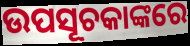
ଉପସୂଚକାଙ୍କରେ